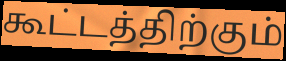
கூட்டத்திற்கும்